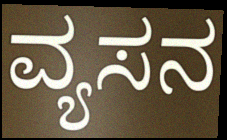
ವ್ಯಸನ